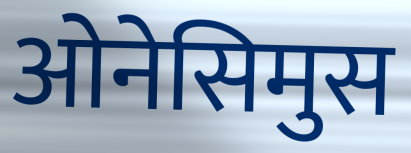
ओनेसिमुस